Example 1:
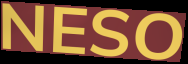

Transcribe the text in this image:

NESO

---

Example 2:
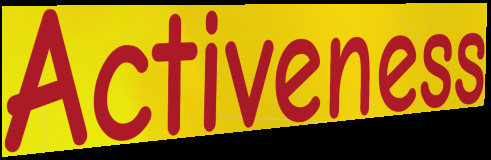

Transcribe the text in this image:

Activeness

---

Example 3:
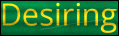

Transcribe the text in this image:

Desiring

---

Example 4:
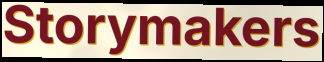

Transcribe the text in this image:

Storymakers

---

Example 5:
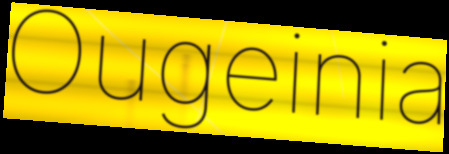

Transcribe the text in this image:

Ougeinia